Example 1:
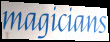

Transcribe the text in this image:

magicians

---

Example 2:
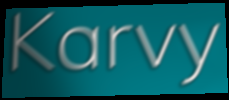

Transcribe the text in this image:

Karvy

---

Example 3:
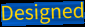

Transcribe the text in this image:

Designed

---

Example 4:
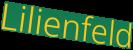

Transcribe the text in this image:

Lilienfeld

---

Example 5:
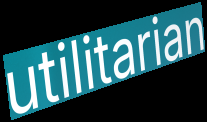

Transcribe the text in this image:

utilitarian